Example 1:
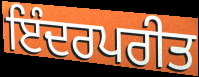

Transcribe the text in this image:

ਇੰਦਰਪਰੀਤ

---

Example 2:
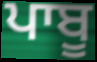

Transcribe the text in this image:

ਪਾਬੂ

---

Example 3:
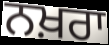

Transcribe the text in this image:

ਨਖ਼ਰਾ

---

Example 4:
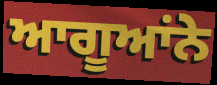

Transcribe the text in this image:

ਆਗੂਆਂਨੇ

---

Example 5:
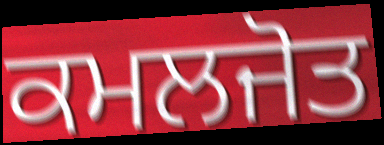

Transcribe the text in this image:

ਕਮਲਜੋਤ